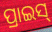
ପ୍ରାଇସ୍